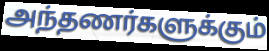
அந்தணர்களுக்கும்